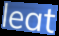
leat